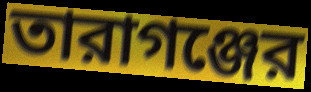
তারাগঞ্জের